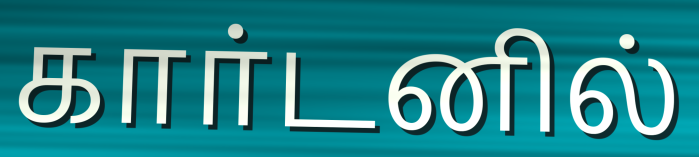
கார்டனில்